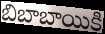
బిబాబాయికి